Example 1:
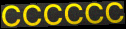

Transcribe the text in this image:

CCCCCC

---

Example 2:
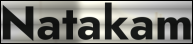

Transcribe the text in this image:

Natakam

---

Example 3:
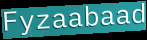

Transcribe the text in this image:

Fyzaabaad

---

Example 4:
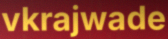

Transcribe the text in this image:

vkrajwade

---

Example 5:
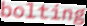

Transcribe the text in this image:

bolting